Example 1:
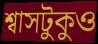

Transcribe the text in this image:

শ্বাসটুকুও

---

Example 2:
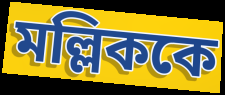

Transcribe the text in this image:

মল্লিককে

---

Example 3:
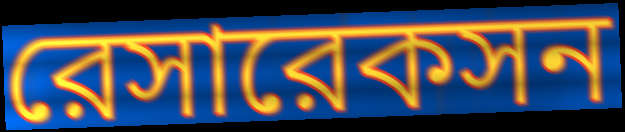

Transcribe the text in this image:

রেসারেকসন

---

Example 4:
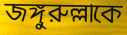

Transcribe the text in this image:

জঙ্গুরুল্লাকে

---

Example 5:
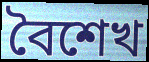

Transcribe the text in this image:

বৈশেখ